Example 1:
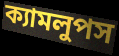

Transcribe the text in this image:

ক্যামলুপস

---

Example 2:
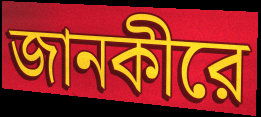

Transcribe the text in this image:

জানকীরে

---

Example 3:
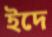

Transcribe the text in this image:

ইদে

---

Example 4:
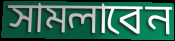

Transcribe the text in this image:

সামলাবেন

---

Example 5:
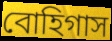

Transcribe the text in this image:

বোহিগাস